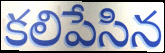
కలిపేసిన